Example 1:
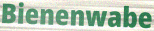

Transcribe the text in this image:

Bienenwabe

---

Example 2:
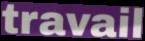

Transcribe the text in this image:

travail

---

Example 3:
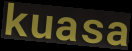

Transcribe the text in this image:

kuasa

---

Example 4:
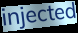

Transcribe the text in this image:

injected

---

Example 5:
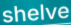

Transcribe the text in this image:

shelve